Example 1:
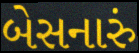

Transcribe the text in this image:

બેસનારું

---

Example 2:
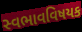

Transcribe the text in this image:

સ્વભાવવિષયક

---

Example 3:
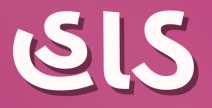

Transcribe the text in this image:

હાડ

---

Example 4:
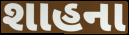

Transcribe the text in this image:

શાહના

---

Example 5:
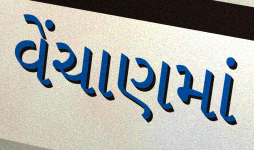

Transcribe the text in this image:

વેંચાણમાં